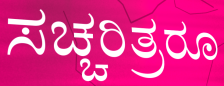
ಸಚ್ಚರಿತ್ರರೂ